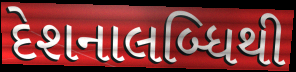
દેશનાલબ્ધિથી